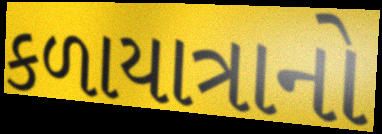
કળાયાત્રાનો